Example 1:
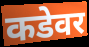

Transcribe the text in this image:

कडेवर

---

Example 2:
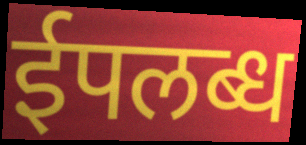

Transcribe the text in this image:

ईपलब्ध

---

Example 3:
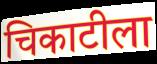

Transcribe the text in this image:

चिकाटीला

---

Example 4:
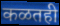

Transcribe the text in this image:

कळतही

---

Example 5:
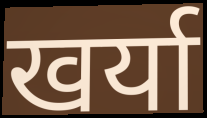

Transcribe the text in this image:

खर्या